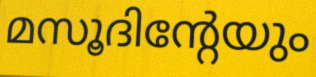
മസൂദിന്റേയും